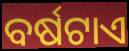
ବର୍ଷଟାଏ